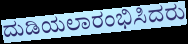
ದುಡಿಯಲಾರಂಭಿಸಿದರು